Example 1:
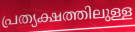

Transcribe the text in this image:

പ്രത്യക്ഷത്തിലുള്ള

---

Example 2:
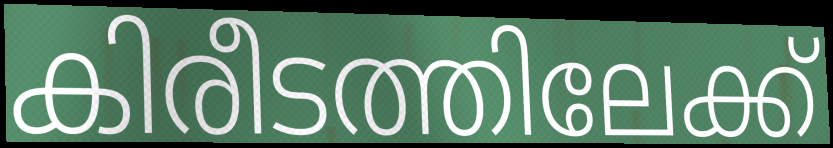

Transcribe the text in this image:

കിരീടത്തിലേക്ക്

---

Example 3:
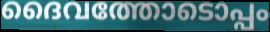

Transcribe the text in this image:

ദൈവത്തോടൊപ്പം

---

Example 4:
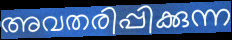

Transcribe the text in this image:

അവതരിപ്പിക്കുന്ന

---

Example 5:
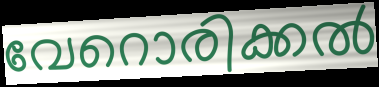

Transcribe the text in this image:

വേറൊരിക്കൽ